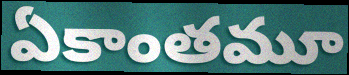
ఏకాంతమూ